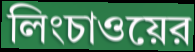
লিংচাওয়ের